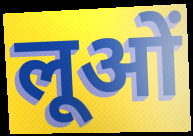
लूओं